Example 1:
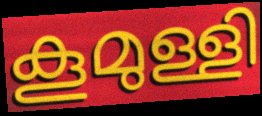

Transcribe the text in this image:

കൂമുള്ളി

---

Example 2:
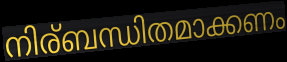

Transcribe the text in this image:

നിര്ബന്ധിതമാക്കണം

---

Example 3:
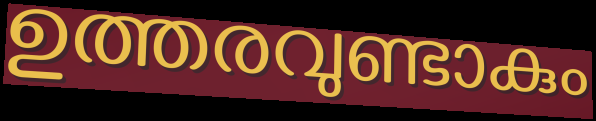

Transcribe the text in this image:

ഉത്തരവുണ്ടാകും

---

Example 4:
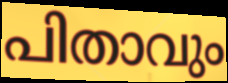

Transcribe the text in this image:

പിതാവും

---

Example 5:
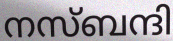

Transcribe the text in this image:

നസ്ബന്ദി